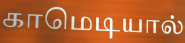
காமெடியால்